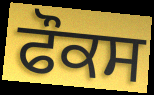
ਫੌਕਸ